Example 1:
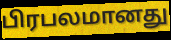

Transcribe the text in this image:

பிரபலமானது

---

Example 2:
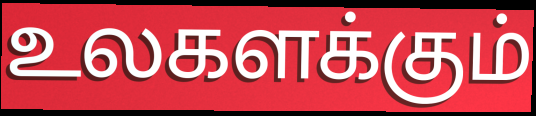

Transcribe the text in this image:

உலகளக்கும்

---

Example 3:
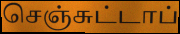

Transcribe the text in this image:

செஞ்சுட்டாப்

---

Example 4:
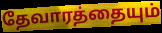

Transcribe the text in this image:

தேவாரத்தையும்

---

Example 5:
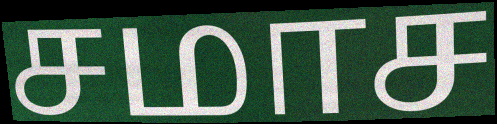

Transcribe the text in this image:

சமாச